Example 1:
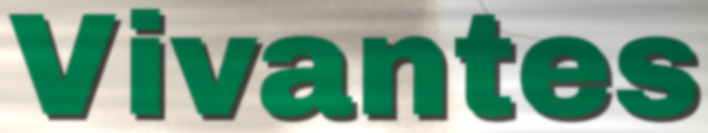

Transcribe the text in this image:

Vivantes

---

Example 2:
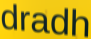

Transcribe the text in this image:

dradh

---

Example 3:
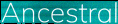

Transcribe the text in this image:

Ancestral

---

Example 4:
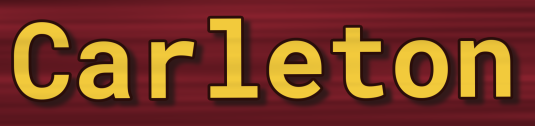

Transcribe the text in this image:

Carleton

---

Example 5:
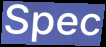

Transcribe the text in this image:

Spec